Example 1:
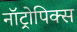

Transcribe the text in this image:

नॉट्रोपिक्स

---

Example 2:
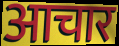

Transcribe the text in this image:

आचार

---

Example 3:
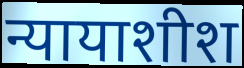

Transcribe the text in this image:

न्यायाशीश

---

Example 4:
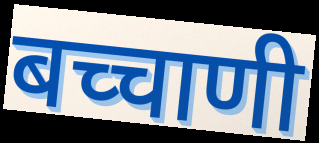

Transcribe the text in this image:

बच्चाणी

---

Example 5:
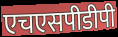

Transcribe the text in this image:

एचएसपीडीपी